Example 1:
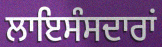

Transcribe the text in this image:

ਲਾਇਸੰਸਦਾਰਾਂ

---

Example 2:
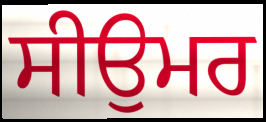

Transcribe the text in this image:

ਸੀਉਮਰ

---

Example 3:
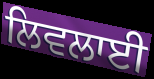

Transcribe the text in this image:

ਲਿਵਲਾਈ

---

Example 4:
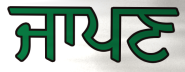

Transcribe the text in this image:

ਜਾਪਣ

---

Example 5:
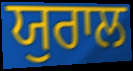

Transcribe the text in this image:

ਯੁਰਾਲ